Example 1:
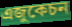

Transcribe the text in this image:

এজুকেচন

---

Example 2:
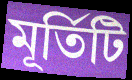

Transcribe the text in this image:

মূৰ্তিটি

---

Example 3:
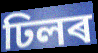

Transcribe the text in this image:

ঢিলৰ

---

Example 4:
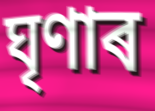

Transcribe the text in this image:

ঘৃণাৰ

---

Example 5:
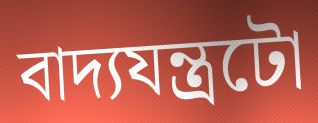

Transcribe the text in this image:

বাদ্যযন্ত্ৰটো